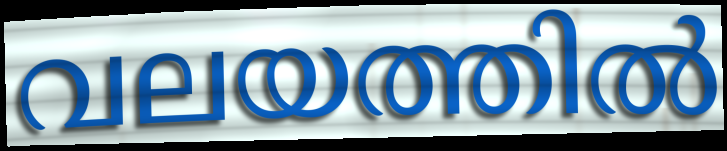
വലയത്തിൽ